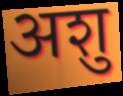
अशु